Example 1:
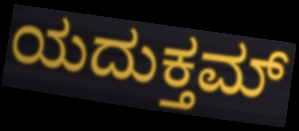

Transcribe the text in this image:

ಯದುಕ್ತಮ್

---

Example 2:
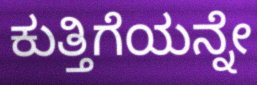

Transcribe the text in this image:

ಕುತ್ತಿಗೆಯನ್ನೇ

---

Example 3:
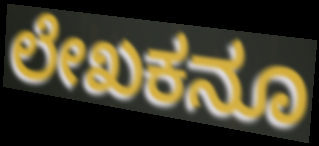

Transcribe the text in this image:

ಲೇಖಕನೂ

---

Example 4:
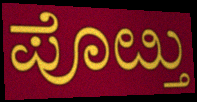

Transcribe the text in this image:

ಪೊೞ್ತು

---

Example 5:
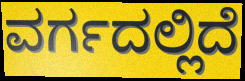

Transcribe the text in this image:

ವರ್ಗದಲ್ಲಿದೆ